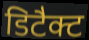
डिटैक्ट